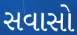
સવાસો